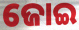
ଜୋଇ